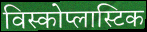
विस्कोप्लास्टिक